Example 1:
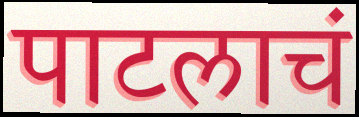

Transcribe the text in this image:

पाटलाचं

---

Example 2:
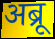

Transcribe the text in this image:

अब्रू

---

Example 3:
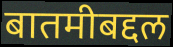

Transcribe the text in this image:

बातमीबद्दल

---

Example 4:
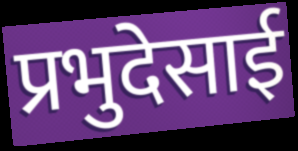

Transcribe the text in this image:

प्रभुदेसाई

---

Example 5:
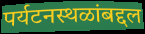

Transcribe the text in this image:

पर्यटनस्थळांबद्दल